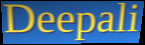
Deepali